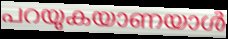
പറയുകയാണയാൾ